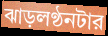
ঝাড়লণ্ঠনটার